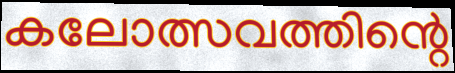
കലോത്സവത്തിന്റെ